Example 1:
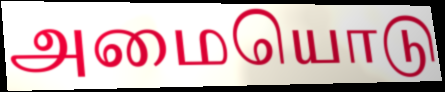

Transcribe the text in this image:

அமையொடு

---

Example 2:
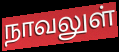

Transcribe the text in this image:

நாவலுள்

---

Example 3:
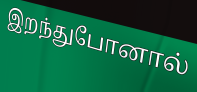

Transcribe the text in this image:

இறந்துபோனால்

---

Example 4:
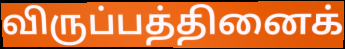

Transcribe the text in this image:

விருப்பத்தினைக்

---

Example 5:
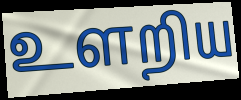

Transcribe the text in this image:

உளறிய